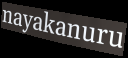
nayakanuru